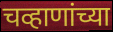
चव्हाणांच्या